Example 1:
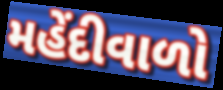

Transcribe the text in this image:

મહેંદીવાળો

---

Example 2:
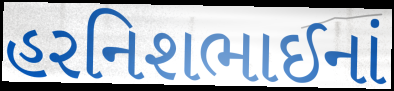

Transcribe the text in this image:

હરનિશભાઈનાં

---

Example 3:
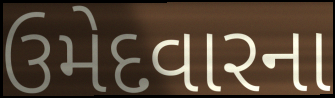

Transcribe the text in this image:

ઉમેદવારના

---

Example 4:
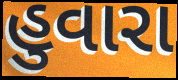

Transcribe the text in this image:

હુવારા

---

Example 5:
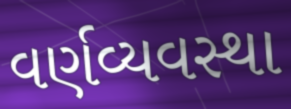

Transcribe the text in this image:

વર્ણવ્યવસ્થા